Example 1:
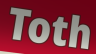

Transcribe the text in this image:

Toth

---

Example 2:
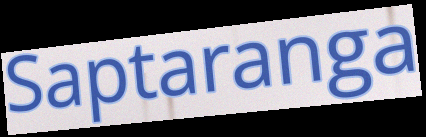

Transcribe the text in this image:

Saptaranga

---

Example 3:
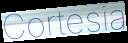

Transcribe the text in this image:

Cortesia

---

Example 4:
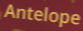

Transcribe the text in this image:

Antelope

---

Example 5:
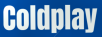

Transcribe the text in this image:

Coldplay